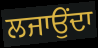
ਲਜਾਉਂਦਾ